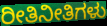
ರೀತಿನೀತಿಗಳು